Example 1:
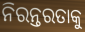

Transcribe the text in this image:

ନିରନ୍ତରତାକୁ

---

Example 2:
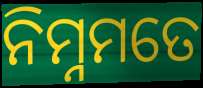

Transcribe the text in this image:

ନିମ୍ନମତେ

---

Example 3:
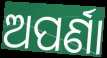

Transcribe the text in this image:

ଅପର୍ଣା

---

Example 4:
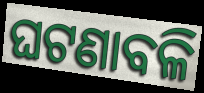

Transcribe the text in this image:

ଘଟଣାବଳି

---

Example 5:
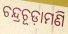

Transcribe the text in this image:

ଚନ୍ଦ୍ରଚୂଡ଼ାମଣି